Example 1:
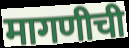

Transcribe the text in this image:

मागणीची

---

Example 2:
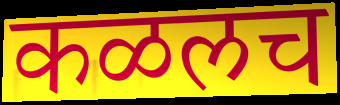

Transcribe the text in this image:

कळलच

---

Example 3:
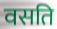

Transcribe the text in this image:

वसति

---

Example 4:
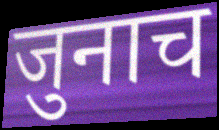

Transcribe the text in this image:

जुनाच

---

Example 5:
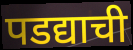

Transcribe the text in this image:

पडद्याची